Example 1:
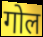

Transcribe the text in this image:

गोल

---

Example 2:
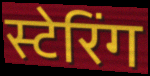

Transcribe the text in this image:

स्टेरिंग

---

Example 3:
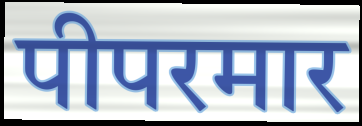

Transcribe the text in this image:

पीपरमार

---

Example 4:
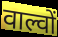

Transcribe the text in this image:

वाल्वों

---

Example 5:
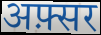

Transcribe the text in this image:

अफ़्सर